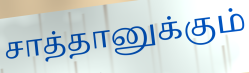
சாத்தானுக்கும்